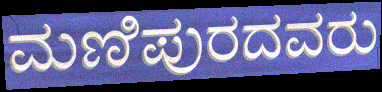
ಮಣಿಪುರದವರು